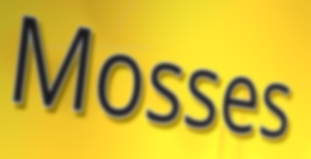
Mosses